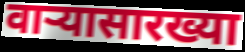
वाऱ्यासारख्या